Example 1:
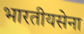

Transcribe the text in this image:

भारतीयसेना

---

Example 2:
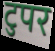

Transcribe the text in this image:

टुपर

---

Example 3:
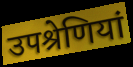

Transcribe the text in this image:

उपश्रेणियां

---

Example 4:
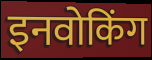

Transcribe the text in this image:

इनवोकिंग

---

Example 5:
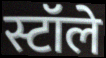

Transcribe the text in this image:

स्टॉले